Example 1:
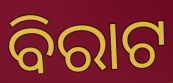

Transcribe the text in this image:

ବିରାଟ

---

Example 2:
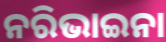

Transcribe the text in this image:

ନରିଭାଇନା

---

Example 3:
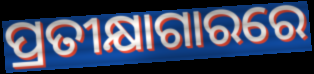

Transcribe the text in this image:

ପ୍ରତୀକ୍ଷାଗାରରେ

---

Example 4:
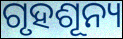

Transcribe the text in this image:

ଗୃହଶୂନ୍ୟ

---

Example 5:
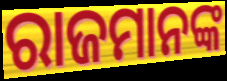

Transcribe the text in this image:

ରାଜମାନଙ୍କ